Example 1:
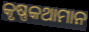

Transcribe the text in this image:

କୃଷ୍ଣକଥାମାନ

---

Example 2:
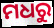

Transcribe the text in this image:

ମଧରୁ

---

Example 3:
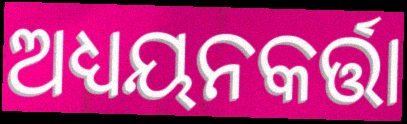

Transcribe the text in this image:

ଅଧ୍ୟୟନକର୍ତ୍ତା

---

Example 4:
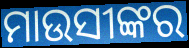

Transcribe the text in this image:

ମାଉସୀଙ୍କର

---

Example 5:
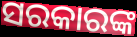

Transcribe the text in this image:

ସରକାରଙ୍କ